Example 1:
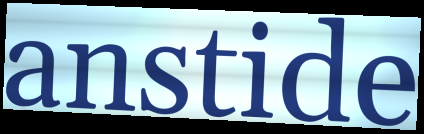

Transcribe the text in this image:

anstide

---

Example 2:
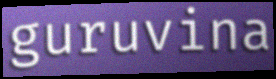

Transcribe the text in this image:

guruvina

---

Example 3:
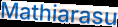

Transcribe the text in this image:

Mathiarasu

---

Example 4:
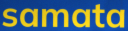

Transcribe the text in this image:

samata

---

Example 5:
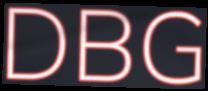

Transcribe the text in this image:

DBG